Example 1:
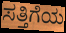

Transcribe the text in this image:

ಸತ್ತಿಗೆಯ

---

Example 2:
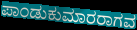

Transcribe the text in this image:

ಪಾಂಡುಕುಮಾರರಾಗವ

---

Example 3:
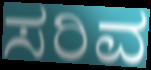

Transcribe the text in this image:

ಸರಿವ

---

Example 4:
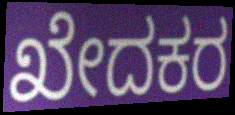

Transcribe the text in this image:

ಖೇದಕರ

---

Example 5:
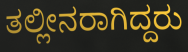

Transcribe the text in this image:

ತಲ್ಲೀನರಾಗಿದ್ದರು